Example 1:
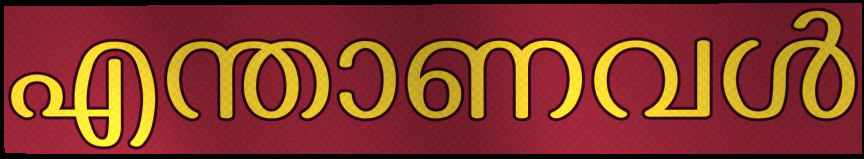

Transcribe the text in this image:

എന്താണവൾ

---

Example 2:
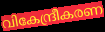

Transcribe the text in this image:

വികേന്ദ്രീകരണ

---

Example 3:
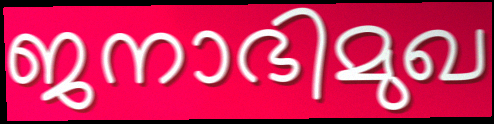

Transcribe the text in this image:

ജനാഭിമുഖ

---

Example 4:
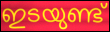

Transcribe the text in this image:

ഇടയുണ്ട്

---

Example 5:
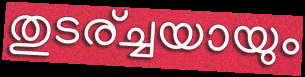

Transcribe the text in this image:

തുടര്ച്ചയായും